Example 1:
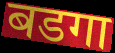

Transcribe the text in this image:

बडगा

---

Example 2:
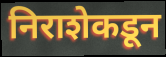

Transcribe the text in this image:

निराशेकडून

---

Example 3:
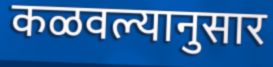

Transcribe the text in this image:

कळवल्यानुसार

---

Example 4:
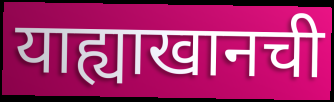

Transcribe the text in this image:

याह्याखानची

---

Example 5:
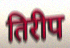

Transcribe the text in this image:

तिरीप